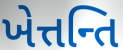
ખેત્તન્તિ